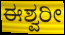
ಈಶ್ವರೀ